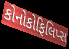
કોનોકોફિલિપ્સ